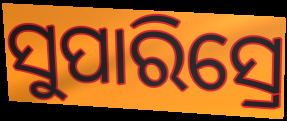
ସୁପାରିସ୍ରେ